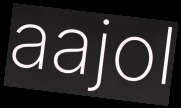
aajol